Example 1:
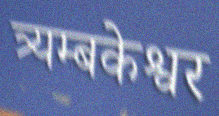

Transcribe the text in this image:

त्र्यम्बकेश्वर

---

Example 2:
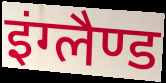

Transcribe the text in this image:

इंग्लैण्ड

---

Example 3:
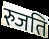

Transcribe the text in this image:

रुजति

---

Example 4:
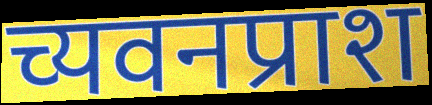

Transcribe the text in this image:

च्‍यवनप्राश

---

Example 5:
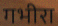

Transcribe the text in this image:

गभीरा